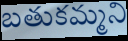
బతుకమ్మని